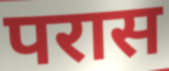
परास